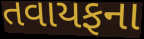
તવાયફના